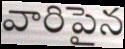
వారిపైన